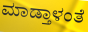
ಮಾಡ್ತಾಳಂತೆ